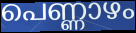
പെണ്ണാഴം